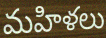
మహిళలు